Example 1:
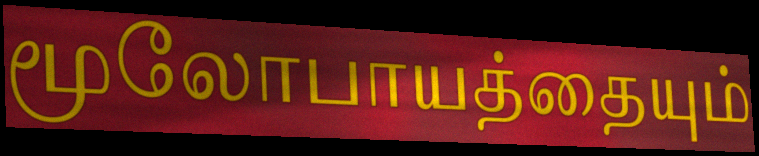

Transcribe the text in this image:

மூலோபாயத்தையும்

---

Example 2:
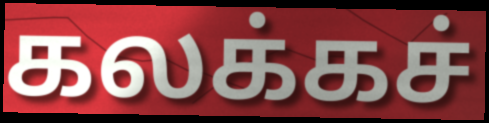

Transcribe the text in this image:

கலக்கச்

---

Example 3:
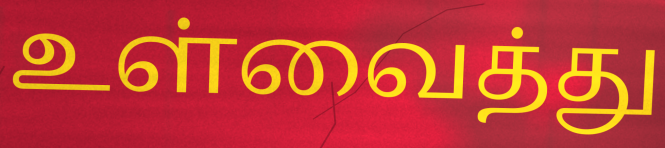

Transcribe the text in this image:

உள்வைத்து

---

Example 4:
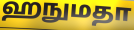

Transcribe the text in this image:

ஹநுமதா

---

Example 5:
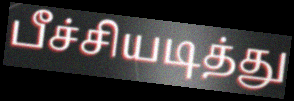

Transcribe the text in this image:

பீச்சியடித்து